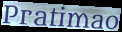
Pratimao